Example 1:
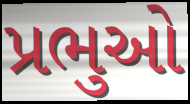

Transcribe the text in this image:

પ્રભુઓ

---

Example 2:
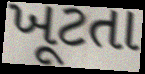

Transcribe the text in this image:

ખૂટતા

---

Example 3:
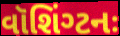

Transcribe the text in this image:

વૉશિંગ્ટનઃ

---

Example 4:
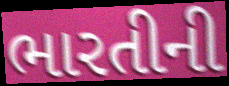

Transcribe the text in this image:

ભારતીની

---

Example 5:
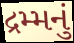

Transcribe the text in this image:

દ્રમ્મનું